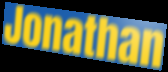
Jonathan